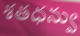
శతధన్వు